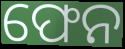
ଫେନ